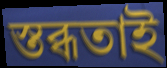
স্তব্ধতাই